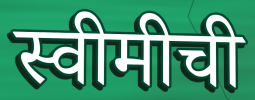
स्वीमीची